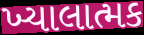
ખ્યાલાત્મક